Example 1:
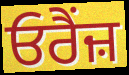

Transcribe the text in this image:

ਓਰੈਂਜ਼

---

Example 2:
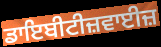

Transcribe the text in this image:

ਡਾਇਬੀਟੀਜ਼ਵਾਈਜ਼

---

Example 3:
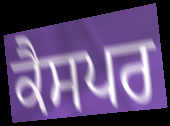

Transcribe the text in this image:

ਕੈਸਪਰ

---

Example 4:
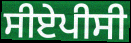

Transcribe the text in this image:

ਸੀਏਪੀਸੀ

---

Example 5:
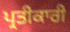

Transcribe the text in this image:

ਪ੍ਰਤੀਕਾਰੀ